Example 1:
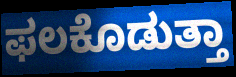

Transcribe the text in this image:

ಫಲಕೊಡುತ್ತಾ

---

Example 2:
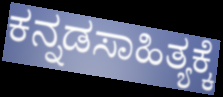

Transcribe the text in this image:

ಕನ್ನಡಸಾಹಿತ್ಯಕ್ಕೆ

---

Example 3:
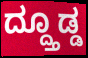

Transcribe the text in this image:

ದ್ದ್ತೂಡ್ಡ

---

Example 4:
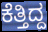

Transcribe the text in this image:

ಕೆತ್ತಿದ್ದ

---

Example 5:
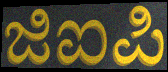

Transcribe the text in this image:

ಜಿಐಪಿ